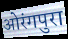
ओरंगपुरा